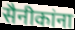
सैनीकांना